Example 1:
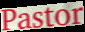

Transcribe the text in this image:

Pastor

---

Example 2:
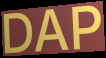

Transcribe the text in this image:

DAP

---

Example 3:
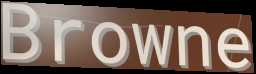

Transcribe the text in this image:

Browne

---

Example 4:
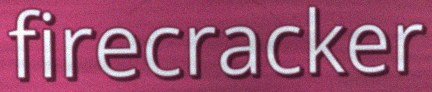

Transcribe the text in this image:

firecracker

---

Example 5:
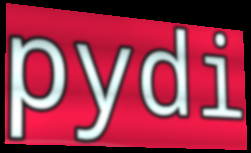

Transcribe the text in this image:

pydi